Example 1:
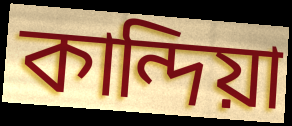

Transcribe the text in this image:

কান্দিয়া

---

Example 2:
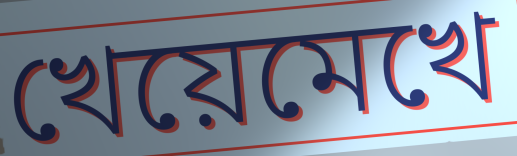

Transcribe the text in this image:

খেয়েমেখে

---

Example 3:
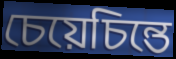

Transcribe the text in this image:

চেয়েচিন্তে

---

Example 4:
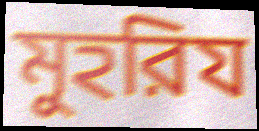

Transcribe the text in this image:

মুহরিয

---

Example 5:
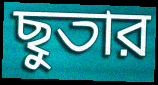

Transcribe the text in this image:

ছুতার